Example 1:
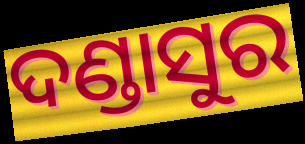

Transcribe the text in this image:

ଦଣ୍ଡାସୁର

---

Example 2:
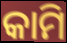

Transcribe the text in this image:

କାମି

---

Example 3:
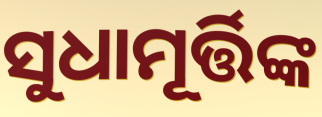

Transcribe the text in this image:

ସୁଧାମୂର୍ତ୍ତିଙ୍କ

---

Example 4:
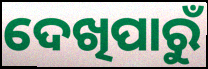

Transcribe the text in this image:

ଦେଖିପାରୁଁ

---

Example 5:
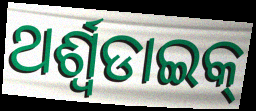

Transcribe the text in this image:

ଥର୍ଶ୍ଵଡାଇକ୍